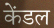
केंडल